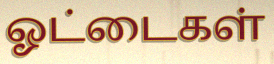
ஓட்டைகள்